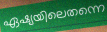
ഏഷ്യയിലെതന്നെ